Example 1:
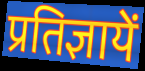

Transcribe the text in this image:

प्रतिज्ञायें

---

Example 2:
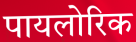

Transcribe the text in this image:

पायलोरिक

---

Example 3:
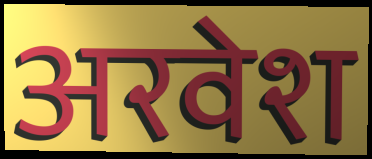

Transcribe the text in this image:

अरवेश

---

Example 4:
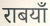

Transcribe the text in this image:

राबयाँ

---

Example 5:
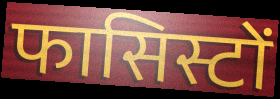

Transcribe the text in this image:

फासिस्टों